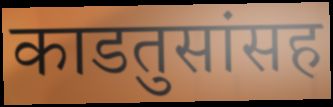
काडतुसांसह